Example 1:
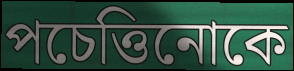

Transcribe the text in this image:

পচেত্তিনোকে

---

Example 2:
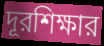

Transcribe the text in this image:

দূরশিক্ষার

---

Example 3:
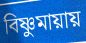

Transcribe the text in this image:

বিষ্ণুমায়ায়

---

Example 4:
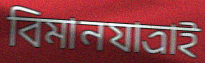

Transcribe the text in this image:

বিমানযাত্রাই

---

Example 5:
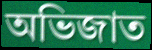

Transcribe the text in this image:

অভিজাত